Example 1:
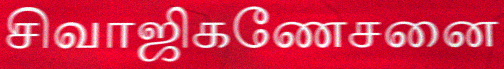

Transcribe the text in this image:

சிவாஜிகணேசனை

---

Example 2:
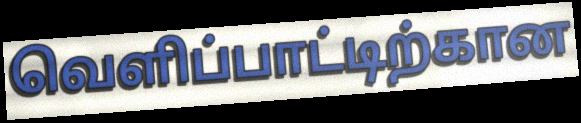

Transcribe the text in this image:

வெளிப்பாட்டிற்கான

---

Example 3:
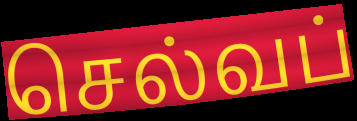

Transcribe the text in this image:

செல்வப்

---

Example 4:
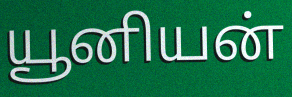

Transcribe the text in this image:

யூனியன்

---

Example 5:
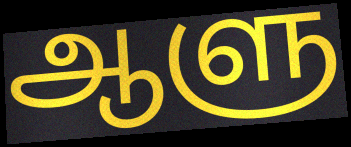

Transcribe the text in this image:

ஆளு